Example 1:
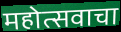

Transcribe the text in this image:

महोत्सवाचा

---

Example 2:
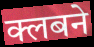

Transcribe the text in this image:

क्‍लबने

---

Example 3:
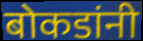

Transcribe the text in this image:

बोकडांनी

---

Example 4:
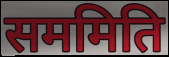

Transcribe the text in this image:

सममिति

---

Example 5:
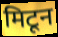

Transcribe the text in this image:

मिटून